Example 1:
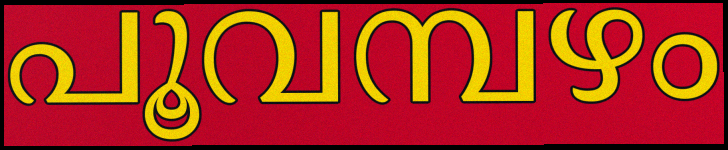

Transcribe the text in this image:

പൂവമ്പഴം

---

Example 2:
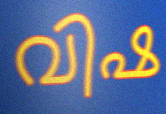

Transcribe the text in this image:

വിഷ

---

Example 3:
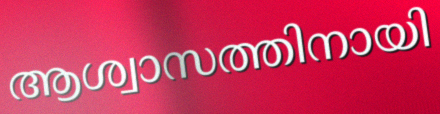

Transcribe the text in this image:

ആശ്വാസത്തിനായി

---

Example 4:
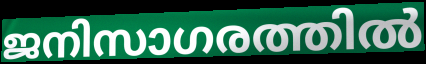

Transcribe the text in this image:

ജനിസാഗരത്തിൽ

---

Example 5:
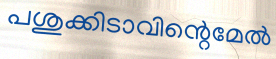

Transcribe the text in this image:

പശുക്കിടാവിന്റെമേൽ